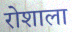
रोशाला